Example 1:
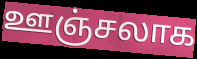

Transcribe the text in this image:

ஊஞ்சலாக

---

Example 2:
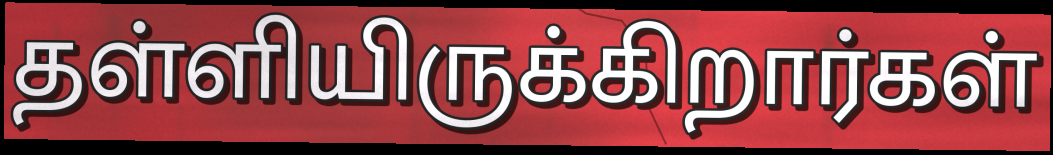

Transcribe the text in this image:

தள்ளியிருக்கிறார்கள்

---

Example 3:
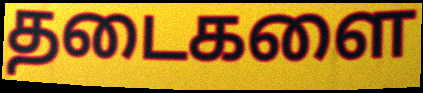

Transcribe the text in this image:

தடைகளை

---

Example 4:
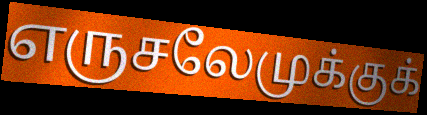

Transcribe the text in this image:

எருசலேமுக்குக்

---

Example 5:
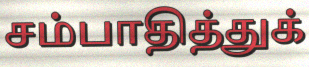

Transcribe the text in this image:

சம்பாதித்துக்